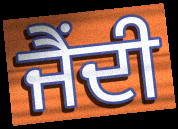
ਜੈਂਦੀ